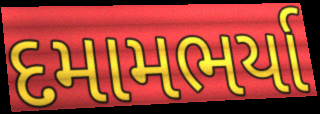
દમામભર્યા